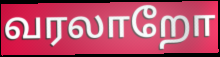
வரலாறோ